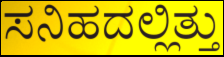
ಸನಿಹದಲ್ಲಿತ್ತು